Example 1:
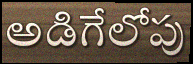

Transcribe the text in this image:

అడిగేలోపు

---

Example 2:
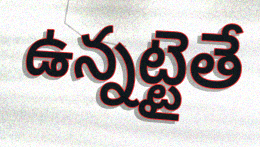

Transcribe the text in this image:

ఉన్నట్టైతే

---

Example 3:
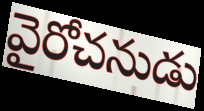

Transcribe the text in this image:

వైరోచనుడు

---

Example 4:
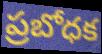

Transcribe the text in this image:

ప్రబోధక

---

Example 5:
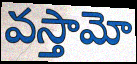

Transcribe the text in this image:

వస్తామో